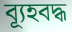
ব্যূহবদ্ধ